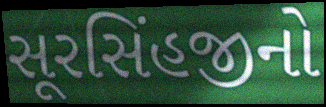
સૂરસિંહજીનો